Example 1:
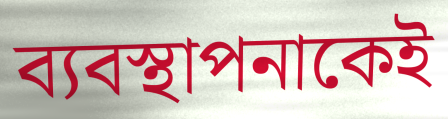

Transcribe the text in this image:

ব্যবস্থাপনাকেই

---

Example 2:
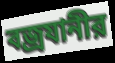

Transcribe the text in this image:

বজ্রযানীর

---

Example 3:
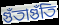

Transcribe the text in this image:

গুঁতাগুঁতি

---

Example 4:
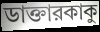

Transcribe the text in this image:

ডাক্তারকাকু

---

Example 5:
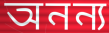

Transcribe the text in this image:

অনন্য